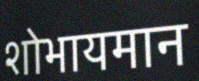
शोभायमान